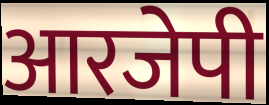
आरजेपी